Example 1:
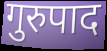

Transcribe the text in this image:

गुरुपाद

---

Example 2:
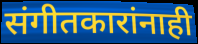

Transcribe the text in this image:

संगीतकारांनाही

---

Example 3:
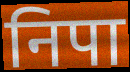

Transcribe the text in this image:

निपा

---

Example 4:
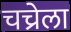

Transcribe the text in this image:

चच्रेला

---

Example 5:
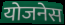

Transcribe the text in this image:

योजनेस